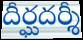
దీర్ఘదర్శీ